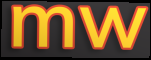
mw